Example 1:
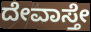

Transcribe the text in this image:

ದೇವಾಸ್ತೇ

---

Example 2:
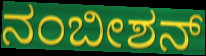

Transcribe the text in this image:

ನಂಬೀಶನ್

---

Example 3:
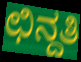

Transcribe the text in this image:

ಛಿನ್ದತಿ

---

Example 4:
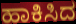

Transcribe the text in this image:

ಹಾಕಿಸಿದ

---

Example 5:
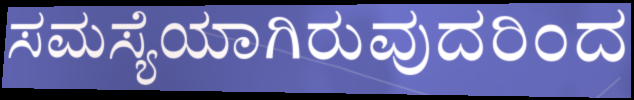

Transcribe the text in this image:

ಸಮಸ್ಯೆಯಾಗಿರುವುದರಿಂದ